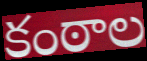
కంఠాల